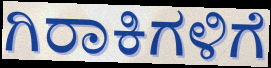
ಗಿರಾಕಿಗಳಿಗೆ